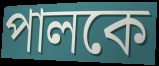
পালকে